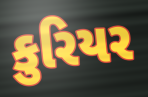
કુરિયર